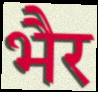
भैर